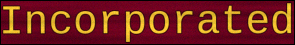
Incorporated